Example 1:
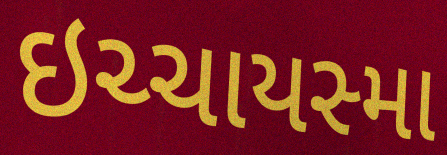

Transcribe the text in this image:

ઇચ્ચાયસ્મા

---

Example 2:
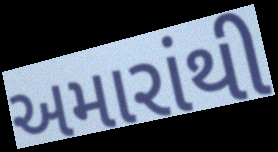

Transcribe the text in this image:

અમારાંથી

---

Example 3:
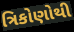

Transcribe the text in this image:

ત્રિકોણોથી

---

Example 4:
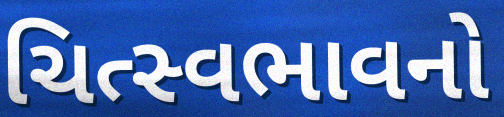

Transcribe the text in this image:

ચિત્સ્વભાવનો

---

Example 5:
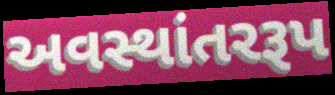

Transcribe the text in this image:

અવસ્થાંતરરૂપ